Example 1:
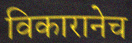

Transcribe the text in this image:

विकारानेच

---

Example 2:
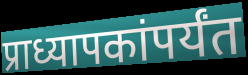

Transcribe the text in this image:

प्राध्यापकांपर्यंत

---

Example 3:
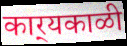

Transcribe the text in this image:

कार्यकाळी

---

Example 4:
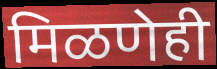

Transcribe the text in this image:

मिळणेही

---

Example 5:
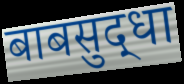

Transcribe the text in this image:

बाबसुद्धा